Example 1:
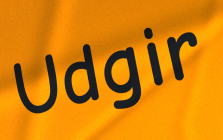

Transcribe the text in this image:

Udgir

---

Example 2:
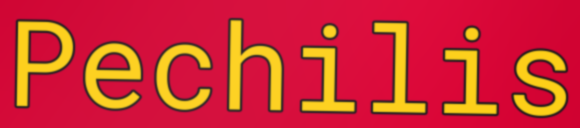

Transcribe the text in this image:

Pechilis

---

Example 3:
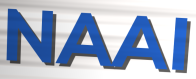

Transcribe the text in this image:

NAAI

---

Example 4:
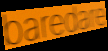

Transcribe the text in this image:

baredare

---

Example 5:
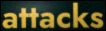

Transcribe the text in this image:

attacks